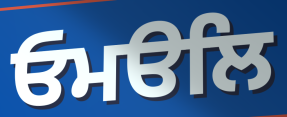
ਓਮੳਲਿ